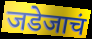
जडेजाचं